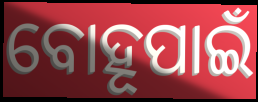
ବୋହୂପାଇଁ